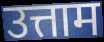
उत्ताम